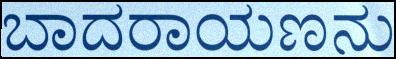
ಬಾದರಾಯಣನು